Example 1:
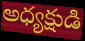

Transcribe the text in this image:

అధ్యక్షుడి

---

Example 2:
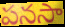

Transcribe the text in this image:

పనసా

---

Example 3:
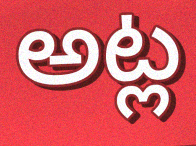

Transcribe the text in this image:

అట్ల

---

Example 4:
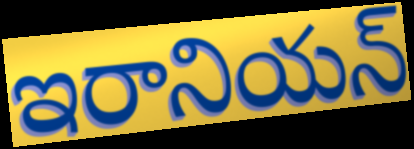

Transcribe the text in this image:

ఇరానియన్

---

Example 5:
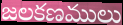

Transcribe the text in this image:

జలకణములు